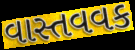
વાસ્તવવક